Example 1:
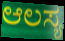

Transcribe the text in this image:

ಆಲಸ್ಯ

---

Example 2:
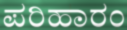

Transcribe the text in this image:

ಪರಿಹಾರಂ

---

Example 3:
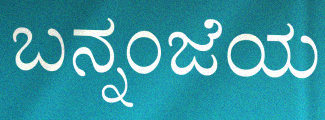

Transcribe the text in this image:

ಬನ್ನಂಜೆಯ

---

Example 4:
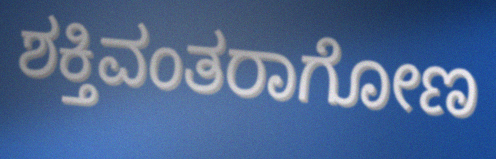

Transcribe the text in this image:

ಶಕ್ತಿವಂತರಾಗೋಣ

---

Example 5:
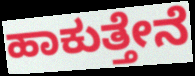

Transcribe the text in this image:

ಹಾಕುತ್ತೇನೆ